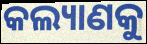
କଲ୍ୟାଣକୁ